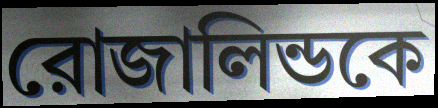
রোজালিন্ডকে